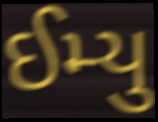
ઈમ્યુ